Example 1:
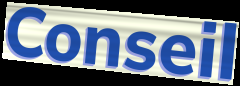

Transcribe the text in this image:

Conseil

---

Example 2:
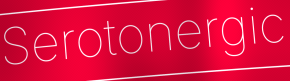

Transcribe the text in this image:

Serotonergic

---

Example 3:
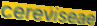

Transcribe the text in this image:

cereviseae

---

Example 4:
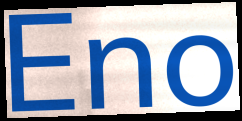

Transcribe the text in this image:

Eno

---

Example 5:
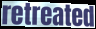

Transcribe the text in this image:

retreated